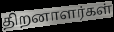
திறனாளர்கள்